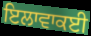
ਇਲਾਵਾਕਈ